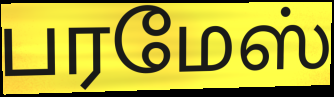
பரமேஸ்